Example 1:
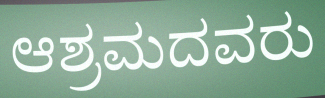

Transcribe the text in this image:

ಆಶ್ರಮದವರು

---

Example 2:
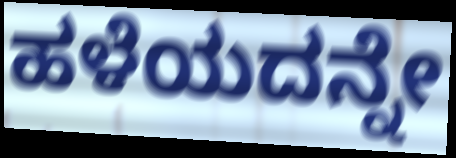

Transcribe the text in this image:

ಹಳೆಯದನ್ನೇ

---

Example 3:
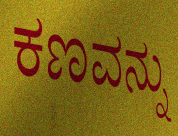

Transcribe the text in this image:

ಕಣವನ್ನು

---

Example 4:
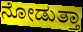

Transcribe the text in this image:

ನೋಡುತ್ತಾ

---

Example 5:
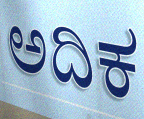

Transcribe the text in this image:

ಅದಿಕ